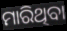
ମାରିଥିବା